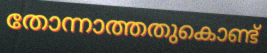
തോന്നാത്തതുകൊണ്ട്